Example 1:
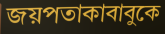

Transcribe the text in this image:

জয়পতাকাবাবুকে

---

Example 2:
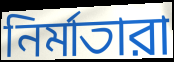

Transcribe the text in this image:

নির্মাতারা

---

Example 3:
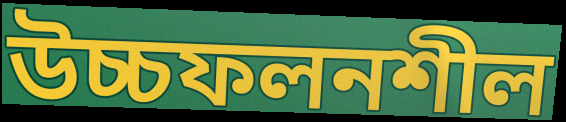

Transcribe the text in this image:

উচ্চফলনশীল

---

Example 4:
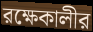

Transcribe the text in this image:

রক্ষেকালীর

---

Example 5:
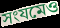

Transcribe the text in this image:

সংযমেও